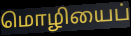
மொழியைப்